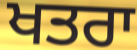
ਖਤਰਾ